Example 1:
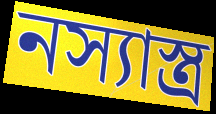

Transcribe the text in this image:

নস্যাস্ত্র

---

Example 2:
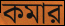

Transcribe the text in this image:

কমার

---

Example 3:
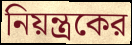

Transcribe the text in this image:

নিয়ন্ত্রকের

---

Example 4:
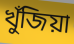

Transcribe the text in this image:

খুঁজিয়া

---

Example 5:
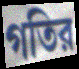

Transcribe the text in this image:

গতির